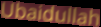
Ubaidullah